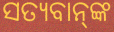
ସତ୍ୟବାନ୍‌ଙ୍କ